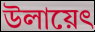
উলায়েৎ